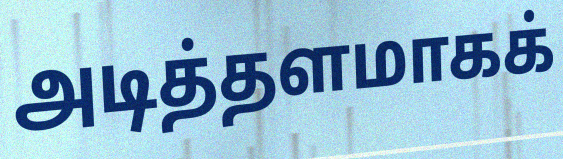
அடித்தளமாகக்